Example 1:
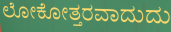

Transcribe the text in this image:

ಲೋಕೋತ್ತರವಾದುದು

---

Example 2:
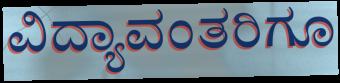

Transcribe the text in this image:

ವಿದ್ಯಾವಂತರಿಗೂ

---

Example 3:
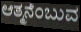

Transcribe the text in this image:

ಆತ್ಮನೆಂಬುವ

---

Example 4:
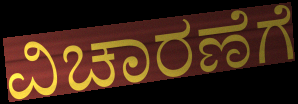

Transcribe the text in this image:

ವಿಚಾರಣೆಗೆ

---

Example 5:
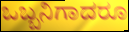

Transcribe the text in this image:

ಒಬ್ಬನಿಗಾದರೂ